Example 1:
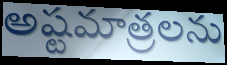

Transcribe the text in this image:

అష్టమాత్రలను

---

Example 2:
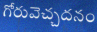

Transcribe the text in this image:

గోరువెచ్చదనం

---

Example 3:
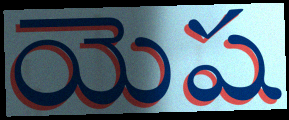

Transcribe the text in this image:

యెష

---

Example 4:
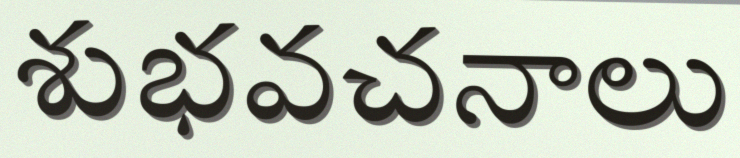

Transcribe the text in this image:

శుభవచనాలు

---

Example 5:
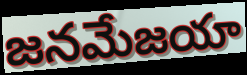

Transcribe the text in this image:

జనమేజయా